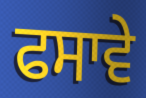
ਫਸਾਵੇ